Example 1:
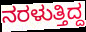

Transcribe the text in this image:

ನರಳುತ್ತಿದ್ದ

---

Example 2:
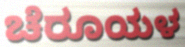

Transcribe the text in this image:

ಚೆರೂಯಳ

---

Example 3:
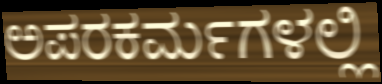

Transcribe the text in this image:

ಅಪರಕರ್ಮಗಳಲ್ಲಿ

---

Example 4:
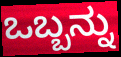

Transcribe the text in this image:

ಒಬ್ಬನ್ನು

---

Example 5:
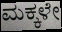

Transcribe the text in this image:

ಮಕ್ಕಳೇ